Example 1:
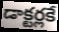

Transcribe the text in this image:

డాక్టర్లకే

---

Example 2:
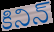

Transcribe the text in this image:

కినిన్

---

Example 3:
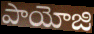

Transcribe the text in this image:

పాయోజి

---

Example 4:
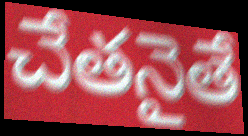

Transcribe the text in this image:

చేతనైతే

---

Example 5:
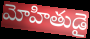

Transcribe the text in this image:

మోహితుడై